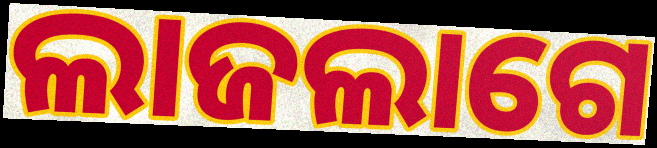
ଲାଜଲାଗେ